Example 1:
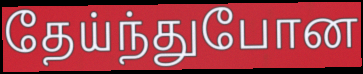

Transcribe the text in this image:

தேய்ந்துபோன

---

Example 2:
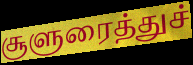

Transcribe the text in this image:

சூளுரைத்துச்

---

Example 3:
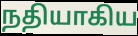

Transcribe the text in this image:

நதியாகிய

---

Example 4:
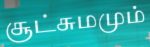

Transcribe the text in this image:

சூட்சுமமும்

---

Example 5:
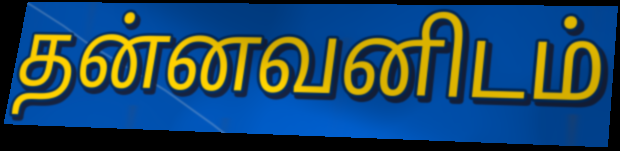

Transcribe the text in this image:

தன்னவனிடம்